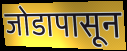
जोडापासून